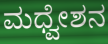
ಮಧ್ವೇಶನ